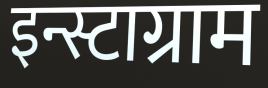
इन्स्टाग्राम